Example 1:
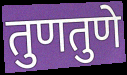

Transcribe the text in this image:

तुणतुणे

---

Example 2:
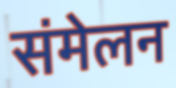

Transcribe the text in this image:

संमेलन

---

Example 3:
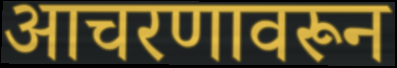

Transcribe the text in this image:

आचरणावरून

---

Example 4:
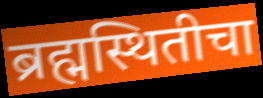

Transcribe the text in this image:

ब्रह्मस्थितीचा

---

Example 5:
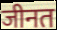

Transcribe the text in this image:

जीनत